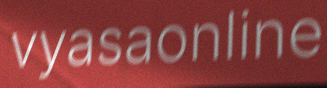
vyasaonline